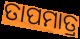
ତାପମାତ୍ର